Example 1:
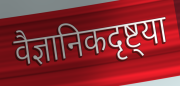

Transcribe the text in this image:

वैज्ञानिकदृष्ट्या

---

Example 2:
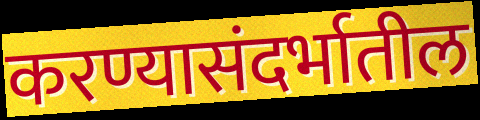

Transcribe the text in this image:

करण्यासंदर्भातील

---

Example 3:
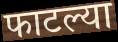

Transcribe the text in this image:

फाटल्या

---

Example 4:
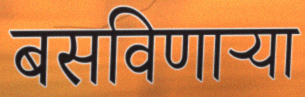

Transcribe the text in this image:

बसविणार्‍या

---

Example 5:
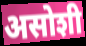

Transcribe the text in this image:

असोशी